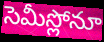
సెమీస్లోనూ